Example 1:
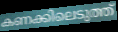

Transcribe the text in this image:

കണക്കിലെടുത്ത്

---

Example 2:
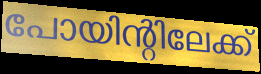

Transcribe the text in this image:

പോയിന്റിലേക്ക്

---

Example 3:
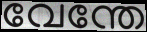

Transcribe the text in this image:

വേന്തേ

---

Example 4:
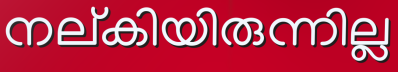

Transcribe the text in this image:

നല്കിയിരുന്നില്ല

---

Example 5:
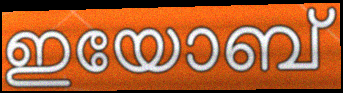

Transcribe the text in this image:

ഇയോബ്